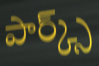
పార్క్స్